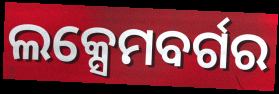
ଲକ୍ସେମବର୍ଗର